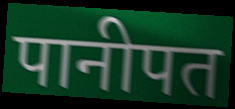
पानीपत